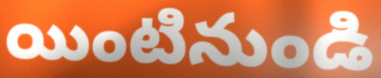
యింటినుండి